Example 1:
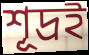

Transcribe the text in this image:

শূদ্ৰই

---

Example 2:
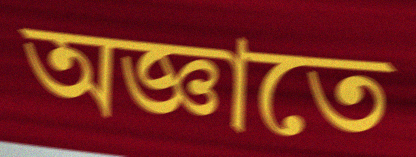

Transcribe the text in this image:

অজ্ঞাতে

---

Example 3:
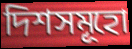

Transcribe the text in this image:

দিশসমূহো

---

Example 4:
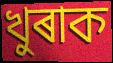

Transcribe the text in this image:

খুৰাক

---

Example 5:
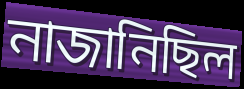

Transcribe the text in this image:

নাজানিছিল